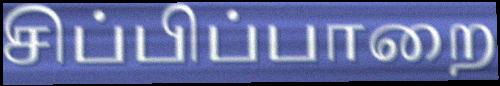
சிப்பிப்பாறை